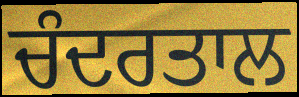
ਚੰਦਰਤਾਲ